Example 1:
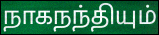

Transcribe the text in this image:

நாகநந்தியும்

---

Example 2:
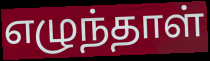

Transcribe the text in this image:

எழுந்தாள்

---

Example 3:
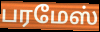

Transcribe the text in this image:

பரமேஸ்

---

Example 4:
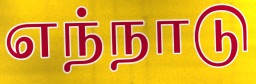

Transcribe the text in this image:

எந்நாடு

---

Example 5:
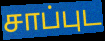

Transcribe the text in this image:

சாப்புட